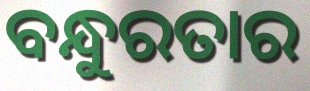
ବନ୍ଧୁରତାର